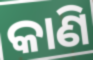
କାଣି